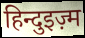
हिन्दुइज़्म